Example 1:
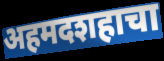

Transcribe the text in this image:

अहमदशहाचा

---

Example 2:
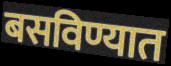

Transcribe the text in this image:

बसविण्यात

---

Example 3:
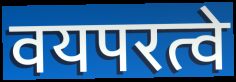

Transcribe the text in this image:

वयपरत्वे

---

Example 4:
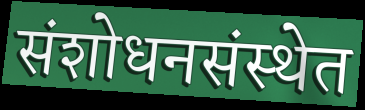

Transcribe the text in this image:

संशोधनसंस्थेत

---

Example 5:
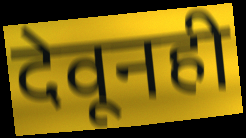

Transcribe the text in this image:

देवूनही